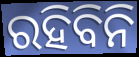
ରହିବିନି